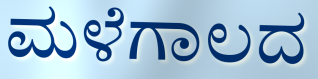
ಮಳೆಗಾಲದ